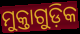
ମୁକ୍ତାଗୁଡ଼ିକ